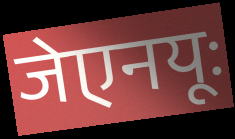
जेएनयूः